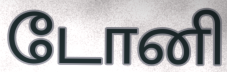
டோனி